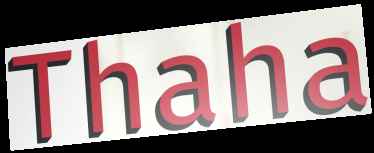
Thaha